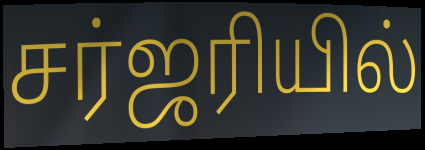
சர்ஜரியில்